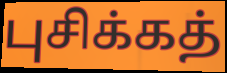
புசிக்கத்